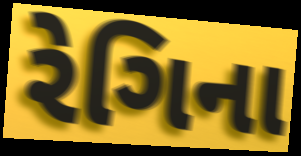
રેગિના